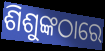
ଶିଶୁଙ୍କଠାରେ